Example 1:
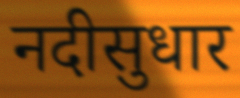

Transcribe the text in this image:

नदीसुधार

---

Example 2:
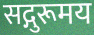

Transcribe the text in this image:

सद्गुरूमय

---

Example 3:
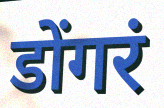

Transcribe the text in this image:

डोंगरं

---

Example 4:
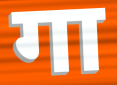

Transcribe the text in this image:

गा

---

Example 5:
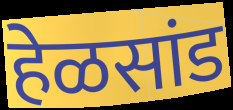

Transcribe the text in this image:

हेळसांड